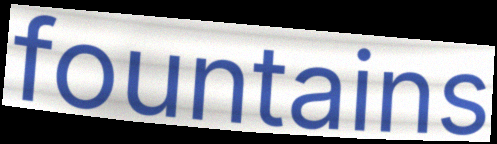
fountains